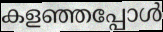
കളഞ്ഞപ്പോൾ